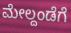
ಮೇಲ್ದಂಡೆಗೆ